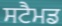
ਸਟੈਮਡ